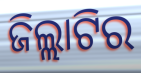
ଜିଲ୍ଲାଟିର